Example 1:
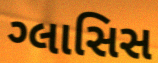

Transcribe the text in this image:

ગ્લાસિસ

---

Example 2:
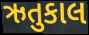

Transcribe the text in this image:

ઋતુકાલ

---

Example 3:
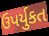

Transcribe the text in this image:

ઉપર્યુકત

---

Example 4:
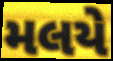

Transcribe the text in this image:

મલયે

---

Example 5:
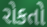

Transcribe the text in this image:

રોકતો